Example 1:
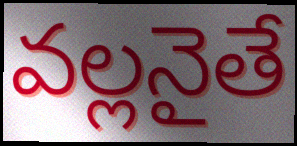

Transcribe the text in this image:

వల్లనైతే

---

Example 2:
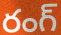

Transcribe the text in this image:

రంగ్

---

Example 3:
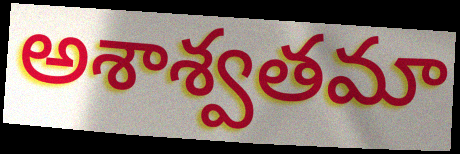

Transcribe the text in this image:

అశాశ్వతమా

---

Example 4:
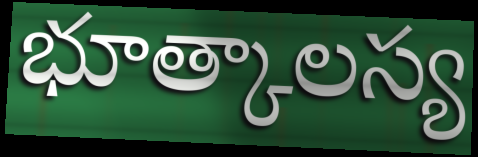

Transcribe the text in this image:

భూత్కాలస్య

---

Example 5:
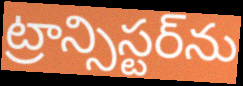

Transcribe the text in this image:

ట్రాన్సిస్టర్‌ను